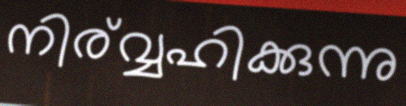
നിര്വ്വഹിക്കുന്നു